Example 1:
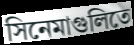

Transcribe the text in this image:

সিনেমাগুলিতে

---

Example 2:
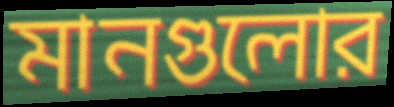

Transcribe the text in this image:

মানগুলোর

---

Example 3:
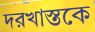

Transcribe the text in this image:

দরখাস্তকে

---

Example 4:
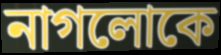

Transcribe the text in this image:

নাগলোকে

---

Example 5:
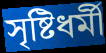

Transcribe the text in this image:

সৃষ্টিধর্মী